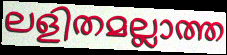
ലളിതമല്ലാത്ത